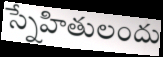
స్నేహితులందు